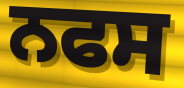
ਨਫਸ